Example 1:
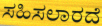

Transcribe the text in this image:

ಸಹಿಸಲಾರದೆ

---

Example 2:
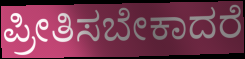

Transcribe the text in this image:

ಪ್ರೀತಿಸಬೇಕಾದರೆ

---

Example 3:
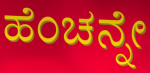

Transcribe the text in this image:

ಹೆಂಚನ್ನೇ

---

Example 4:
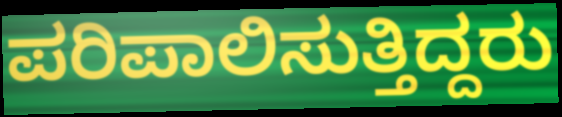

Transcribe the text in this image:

ಪರಿಪಾಲಿಸುತ್ತಿದ್ದರು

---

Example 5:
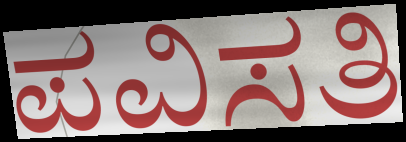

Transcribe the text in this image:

ಪವಿಸತಿ